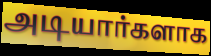
அடியார்களாக